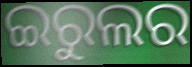
ଇରୁଲର